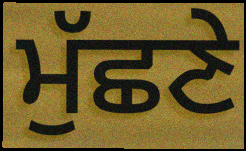
ਮੁੱਛਣੇ